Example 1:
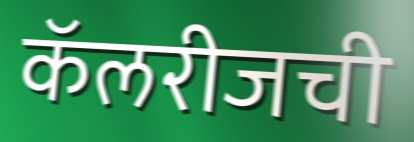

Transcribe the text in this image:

कॅलरीजची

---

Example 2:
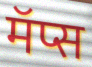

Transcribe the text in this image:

मॅप्स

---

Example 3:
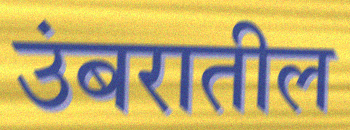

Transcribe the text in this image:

उंबरातील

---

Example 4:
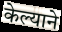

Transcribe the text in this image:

केल्‍याने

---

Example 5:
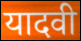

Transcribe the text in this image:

यादवी